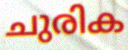
ചുരിക